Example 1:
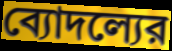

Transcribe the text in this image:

ব্যোদল্যের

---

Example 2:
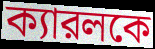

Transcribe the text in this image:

ক্যারলকে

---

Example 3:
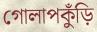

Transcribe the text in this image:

গোলাপকুঁড়ি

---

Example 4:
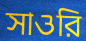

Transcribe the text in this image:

সাওরি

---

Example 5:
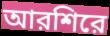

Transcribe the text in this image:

আরশিরে